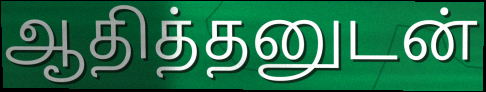
ஆதித்தனுடன்